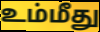
உம்மீது